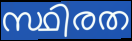
സ്ഥിരത